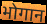
भोगान